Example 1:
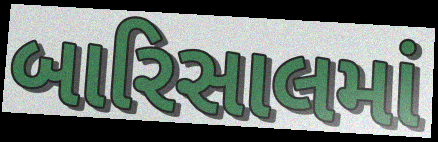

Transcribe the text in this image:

બારિસાલમાં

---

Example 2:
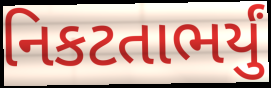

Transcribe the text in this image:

નિકટતાભર્યું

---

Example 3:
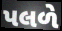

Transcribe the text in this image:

પલળે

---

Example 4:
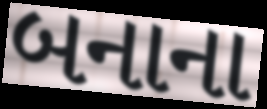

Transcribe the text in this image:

બનાના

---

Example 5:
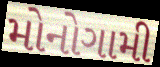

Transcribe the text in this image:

મોનોગામી